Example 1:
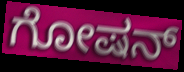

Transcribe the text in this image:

ಗೋಷನ್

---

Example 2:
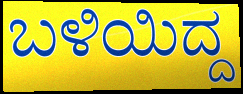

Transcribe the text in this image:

ಬಳಿಯಿದ್ದ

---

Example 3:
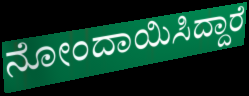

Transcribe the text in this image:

ನೋಂದಾಯಿಸಿದ್ದಾರೆ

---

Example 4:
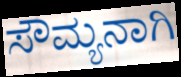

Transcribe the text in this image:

ಸೌಮ್ಯನಾಗಿ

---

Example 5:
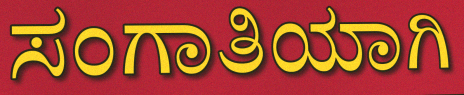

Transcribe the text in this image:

ಸಂಗಾತಿಯಾಗಿ